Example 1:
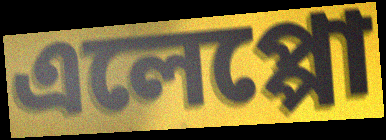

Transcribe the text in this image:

এলেপ্পো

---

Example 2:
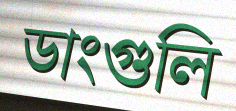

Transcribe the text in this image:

ডাংগুলি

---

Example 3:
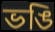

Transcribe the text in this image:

ভঙি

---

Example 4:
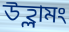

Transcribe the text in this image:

উহ্লামং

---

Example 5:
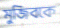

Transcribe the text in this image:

মুজিবকে